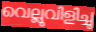
വെല്ലുവിളിച്ചു